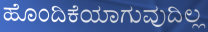
ಹೊಂದಿಕೆಯಾಗುವುದಿಲ್ಲ